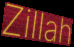
Zillah